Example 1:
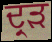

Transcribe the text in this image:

ਦ੍ਰੜ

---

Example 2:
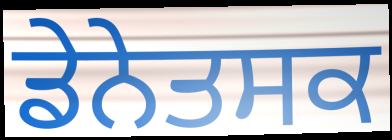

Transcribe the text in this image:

ਡੇਨੇਤਸਕ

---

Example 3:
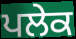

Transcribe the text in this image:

ਪਲੇਕ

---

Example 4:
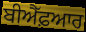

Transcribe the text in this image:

ਬੀਐੱਫ਼ਆਰ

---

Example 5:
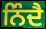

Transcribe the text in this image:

ਨਿੰਦੈ